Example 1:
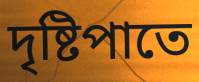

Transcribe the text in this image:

দৃষ্টিপাতে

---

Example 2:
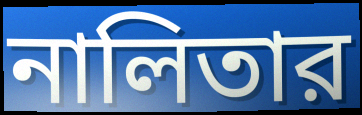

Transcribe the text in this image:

নালিতার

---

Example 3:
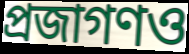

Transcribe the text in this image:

প্রজাগণও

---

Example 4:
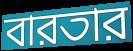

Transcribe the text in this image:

বারতার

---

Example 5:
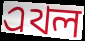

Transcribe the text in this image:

এথল